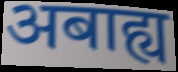
अबाह्य